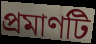
প্রমাণটি